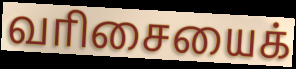
வரிசையைக்